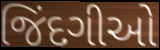
જિંદગીઓ